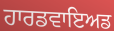
ਹਾਰਡਵਾਇਅਡ